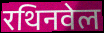
रथिनवेल